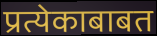
प्रत्येकाबाबत